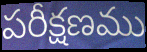
పరీక్షణము